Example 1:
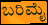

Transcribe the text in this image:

ಬರಿಮೈ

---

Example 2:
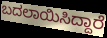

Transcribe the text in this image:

ಬದಲಾಯಿಸಿದ್ದಾರೆ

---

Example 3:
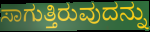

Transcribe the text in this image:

ಸಾಗುತ್ತಿರುವುದನ್ನು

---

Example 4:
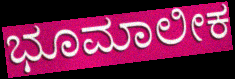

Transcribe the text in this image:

ಭೂಮಾಲೀಕ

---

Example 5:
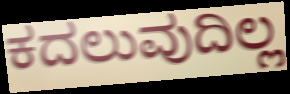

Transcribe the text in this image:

ಕದಲುವುದಿಲ್ಲ